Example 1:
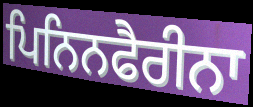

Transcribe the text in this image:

ਪਿਨਿਨਫੈਰੀਨਾ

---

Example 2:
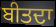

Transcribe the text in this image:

ਬੀਤਦਾ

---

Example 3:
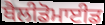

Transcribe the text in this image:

ਥੈਲੀਡੋਮਾਈਡ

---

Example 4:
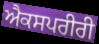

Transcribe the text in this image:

ਐਕਸਪਰੀਰੀ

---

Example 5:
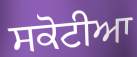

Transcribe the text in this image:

ਸਕੋਟੀਆ